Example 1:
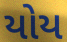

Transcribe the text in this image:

યોય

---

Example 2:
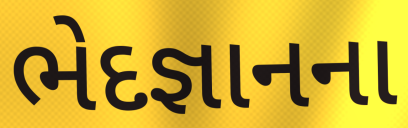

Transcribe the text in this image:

ભેદજ્ઞાનના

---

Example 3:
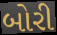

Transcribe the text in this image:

બોરી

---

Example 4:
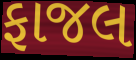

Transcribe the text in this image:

ફાજલ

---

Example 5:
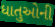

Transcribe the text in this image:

ધાતુઓની